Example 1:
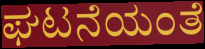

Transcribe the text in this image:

ಘಟನೆಯಂತೆ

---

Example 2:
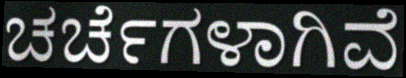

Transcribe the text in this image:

ಚರ್ಚೆಗಳಾಗಿವೆ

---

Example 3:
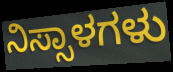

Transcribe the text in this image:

ನಿಸ್ಸಾಳಗಳು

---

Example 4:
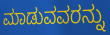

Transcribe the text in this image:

ಮಾಡುವವರನ್ನು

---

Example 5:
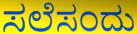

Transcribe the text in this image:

ಸಲೆಸಂದು